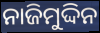
ନାଜିମୁଦ୍ଦିନ